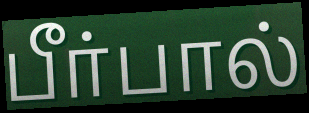
பீர்பால்